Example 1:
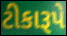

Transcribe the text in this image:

ટીકારૂપે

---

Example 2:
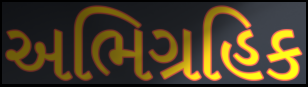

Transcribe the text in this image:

અભિગ્રહિક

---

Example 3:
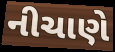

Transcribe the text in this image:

નીચાણે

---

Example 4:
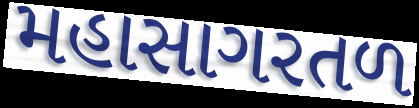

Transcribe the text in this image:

મહાસાગરતળ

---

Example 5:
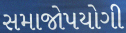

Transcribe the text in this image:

સમાજોપયોગી